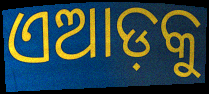
ଏଆଡ଼କୁ